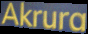
Akrura